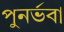
পুনর্ভবা